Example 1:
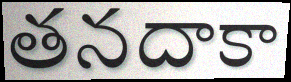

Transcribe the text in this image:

తనదాకా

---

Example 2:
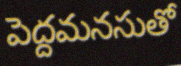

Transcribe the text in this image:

పెద్దమనసుతో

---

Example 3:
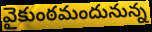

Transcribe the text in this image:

వైకుంఠమందునున్న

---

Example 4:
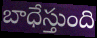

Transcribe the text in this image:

బాధేస్తుంది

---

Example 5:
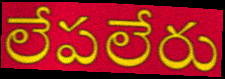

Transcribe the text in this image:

లేపలేరు